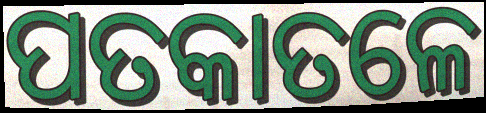
ପତକାତଳେ